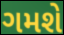
ગમશે